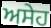
ਅਸੇਹ